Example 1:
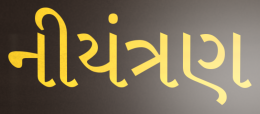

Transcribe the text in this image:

નીયંત્રણ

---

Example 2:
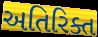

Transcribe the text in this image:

અતિરિક્ત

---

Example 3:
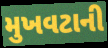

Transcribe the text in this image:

મુખવટાની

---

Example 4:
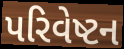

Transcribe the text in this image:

પરિવેષ્ટન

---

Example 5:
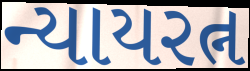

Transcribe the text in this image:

ન્યાયરત્ન